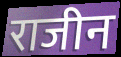
राजीन